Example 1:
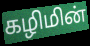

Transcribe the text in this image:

கழிமின்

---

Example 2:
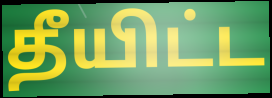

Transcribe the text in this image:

தீயிட்ட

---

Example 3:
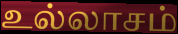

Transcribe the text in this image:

உல்லாசம்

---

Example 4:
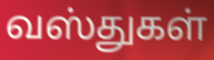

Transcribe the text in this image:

வஸ்துகள்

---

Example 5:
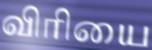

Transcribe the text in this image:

விரியை